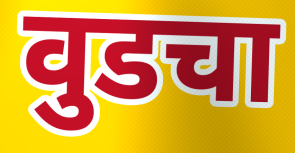
वुडचा